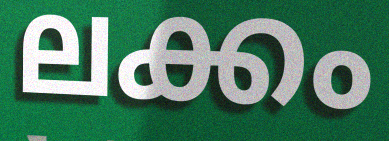
ലക്കം